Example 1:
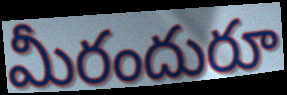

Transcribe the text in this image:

మీరందురూ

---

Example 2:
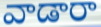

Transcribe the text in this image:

వాడారా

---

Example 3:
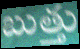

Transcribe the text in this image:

బుత్తు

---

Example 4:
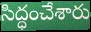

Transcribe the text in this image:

సిద్ధంచేశారు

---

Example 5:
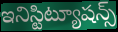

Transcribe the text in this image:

ఇనిస్టిట్యూషన్స్